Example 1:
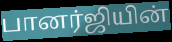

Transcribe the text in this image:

பானர்ஜியின்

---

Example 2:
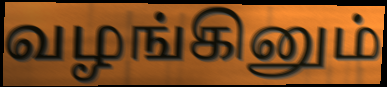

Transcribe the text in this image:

வழங்கினும்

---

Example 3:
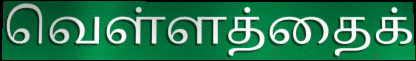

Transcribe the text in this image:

வெள்ளத்தைக்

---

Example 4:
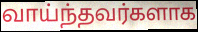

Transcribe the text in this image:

வாய்ந்தவர்களாக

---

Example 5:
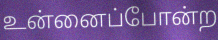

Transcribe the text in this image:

உன்னைப்போன்ற